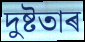
দুষ্টতাৰ